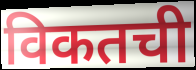
विकतची